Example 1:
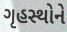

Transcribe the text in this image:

ગૃહસ્થોને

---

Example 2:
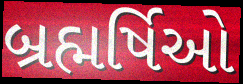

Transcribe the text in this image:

બ્રહ્મર્ષિઓ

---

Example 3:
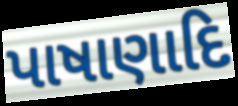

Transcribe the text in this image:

પાષાણાદિ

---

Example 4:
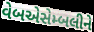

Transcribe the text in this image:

વેબએસેમ્બલીને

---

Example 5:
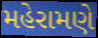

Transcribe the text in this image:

મહેરામણે